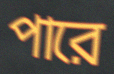
পারে